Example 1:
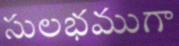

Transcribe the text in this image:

సులభముగా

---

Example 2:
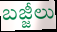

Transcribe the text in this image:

బజ్జీలు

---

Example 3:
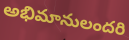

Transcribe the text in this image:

అభిమానులందరి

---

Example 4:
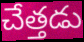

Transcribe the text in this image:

చేత్తడు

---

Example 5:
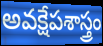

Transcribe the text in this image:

అవక్షేపశాస్త్రం